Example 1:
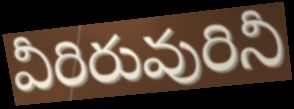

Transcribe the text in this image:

వీరిరువురినీ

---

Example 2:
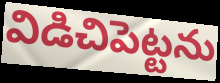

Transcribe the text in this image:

విడిచిపెట్టను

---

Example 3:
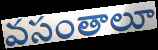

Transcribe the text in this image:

వసంతాలూ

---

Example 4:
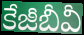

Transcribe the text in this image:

కేజీబీవీ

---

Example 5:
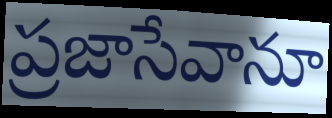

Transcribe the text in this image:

ప్రజాసేవానూ